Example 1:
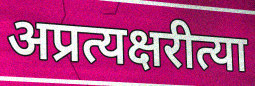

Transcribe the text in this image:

अप्रत्यक्षरीत्या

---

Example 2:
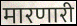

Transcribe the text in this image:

मारणारी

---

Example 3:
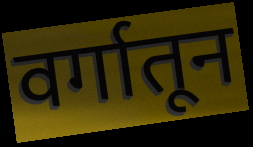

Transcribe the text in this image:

वर्गातून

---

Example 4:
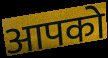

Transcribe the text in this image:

आपको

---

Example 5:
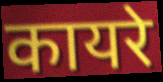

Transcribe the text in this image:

कायरे